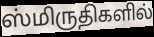
ஸ்மிருதிகளில்